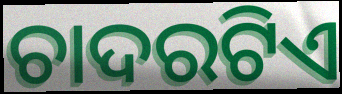
ଚାଦରଟିଏ